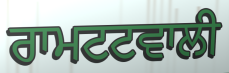
ਰਾਮਟਟਵਾਲੀ